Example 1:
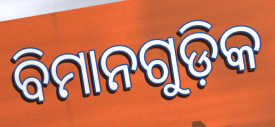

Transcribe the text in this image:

ବିମାନଗୁଡ଼ିକ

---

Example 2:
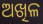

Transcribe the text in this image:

ଅଖିଳ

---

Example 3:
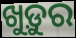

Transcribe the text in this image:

ଖୁଡ଼ୁର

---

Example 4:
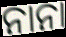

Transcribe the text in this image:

ନାନା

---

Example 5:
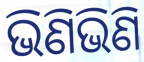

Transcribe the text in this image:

ଭିଣିଭିଣି